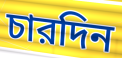
চারদিন